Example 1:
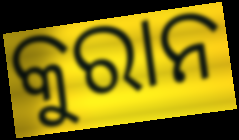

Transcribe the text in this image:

କୁରାନ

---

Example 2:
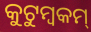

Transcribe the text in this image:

କୁଟୁମ୍ବକମ୍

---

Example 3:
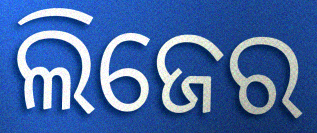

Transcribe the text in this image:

ଲିଜେର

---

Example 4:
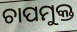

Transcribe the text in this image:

ଚାପମୁକ୍ତ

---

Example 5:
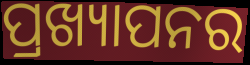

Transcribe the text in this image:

ପ୍ରଖ୍ୟାପନର